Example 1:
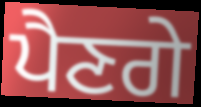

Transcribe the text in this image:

ਪੈਣਗੇ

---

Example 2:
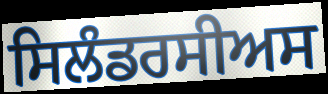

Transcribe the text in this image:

ਸਿਲੰਡਰਸੀਅਸ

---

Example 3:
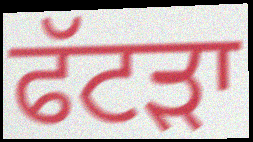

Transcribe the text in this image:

ਫੱਟੜਾ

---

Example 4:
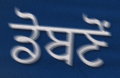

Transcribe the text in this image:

ਡੋਬਣੋਂ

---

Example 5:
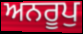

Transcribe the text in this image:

ਅਨਰੂਪੁ